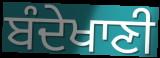
ਬੰਦੇਖਾਣੀ